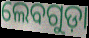
ଲେବଗୁଡ଼ା